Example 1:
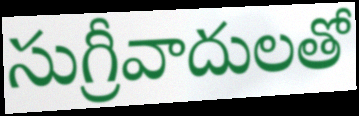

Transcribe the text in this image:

సుగ్రీవాదులతో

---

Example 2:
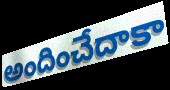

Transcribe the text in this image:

అందించేదాకా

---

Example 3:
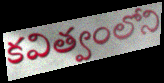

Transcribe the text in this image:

కవిత్వంలోని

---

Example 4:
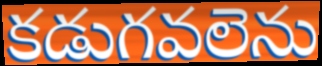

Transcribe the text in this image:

కడుగవలెను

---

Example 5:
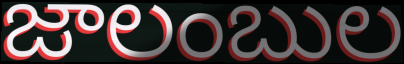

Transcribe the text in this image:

జాలంబుల